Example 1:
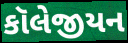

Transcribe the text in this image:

કૉલેજીયન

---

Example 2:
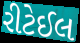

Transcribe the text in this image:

રીટેઈલ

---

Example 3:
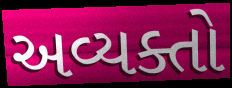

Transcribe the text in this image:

અવ્યક્તો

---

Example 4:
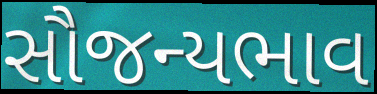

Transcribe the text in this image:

સૌજન્યભાવ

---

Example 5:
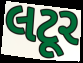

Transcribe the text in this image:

લટૂર